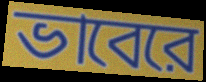
ভাবেরে